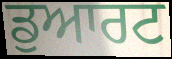
ਡੁਆਰਟ